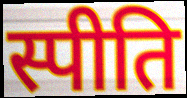
स्पीति